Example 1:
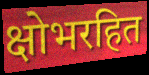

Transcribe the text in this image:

क्षोभरहित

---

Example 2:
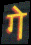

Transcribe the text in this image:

गे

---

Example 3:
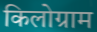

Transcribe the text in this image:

किलोग्राम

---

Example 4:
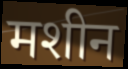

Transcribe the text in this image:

मशीन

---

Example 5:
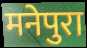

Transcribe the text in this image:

मनेपुरा